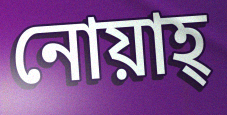
নোয়াহ্